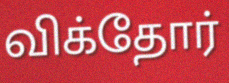
விக்தோர்